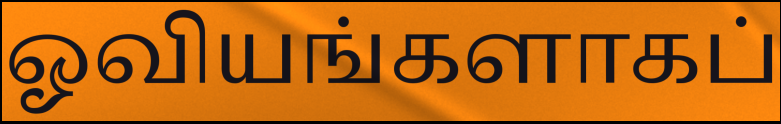
ஓவியங்களாகப்